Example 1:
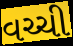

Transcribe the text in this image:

વચ્ચી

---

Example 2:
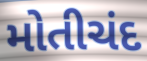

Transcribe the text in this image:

મોતીચંદ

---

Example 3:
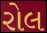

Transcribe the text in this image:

રોલ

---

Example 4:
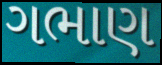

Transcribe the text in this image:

ગભાણ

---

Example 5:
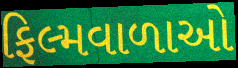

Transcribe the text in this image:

ફિલ્મવાળાઓ